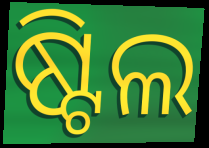
ଷ୍ଟିଲ